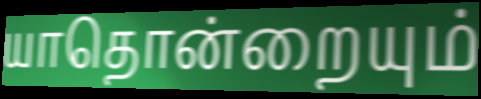
யாதொன்றையும்